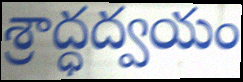
శ్రాద్ధద్వయం